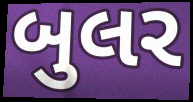
બુલર